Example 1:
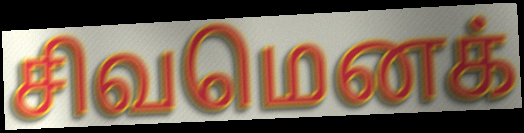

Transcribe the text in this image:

சிவமெனக்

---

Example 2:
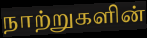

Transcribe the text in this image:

நாற்றுகளின்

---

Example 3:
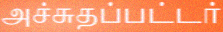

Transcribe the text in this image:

அச்சுதப்பட்டர்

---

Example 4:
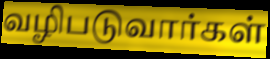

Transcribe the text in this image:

வழிபடுவார்கள்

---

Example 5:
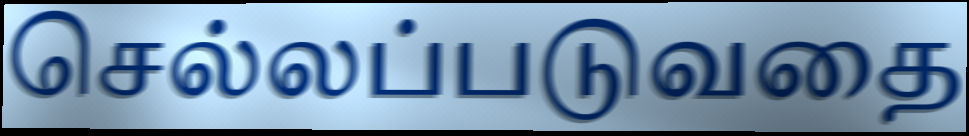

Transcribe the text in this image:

செல்லப்படுவதை